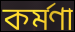
কর্মণা